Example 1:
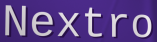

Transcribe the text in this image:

Nextro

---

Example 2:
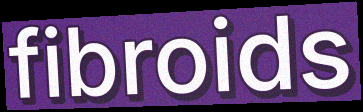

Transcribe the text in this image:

fibroids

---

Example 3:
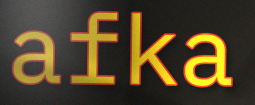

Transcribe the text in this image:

afka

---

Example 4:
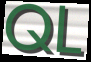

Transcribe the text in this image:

QL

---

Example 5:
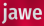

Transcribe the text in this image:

jawe